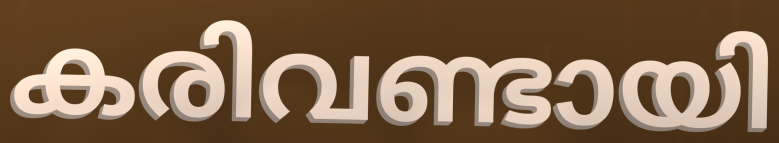
കരിവണ്ടായി